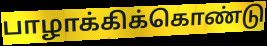
பாழாக்கிக்கொண்டு